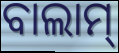
ବାଲାମ୍